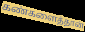
கண்களைத்தான்